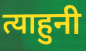
त्याहुनी